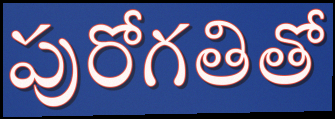
పురోగతితో